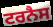
ਟਰਨੈਸ